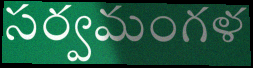
సర్వమంగళ